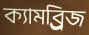
ক্যামব্র্রিজ